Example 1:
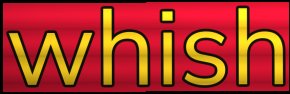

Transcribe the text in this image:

whish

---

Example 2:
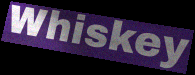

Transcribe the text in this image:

Whiskey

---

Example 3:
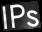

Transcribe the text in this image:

IPs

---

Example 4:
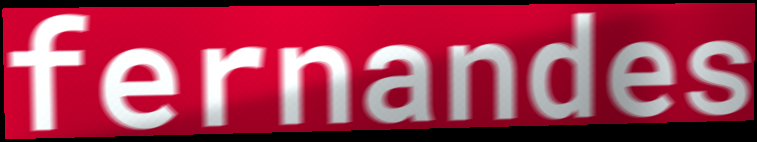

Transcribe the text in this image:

fernandes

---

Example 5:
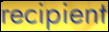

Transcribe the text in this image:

recipient